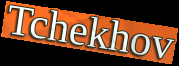
Tchekhov